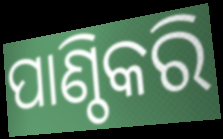
ପାଣ୍ଠିକରି